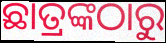
ଛାତ୍ରଙ୍କଠାରୁ